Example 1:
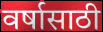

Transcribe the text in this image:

वर्षासाठी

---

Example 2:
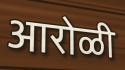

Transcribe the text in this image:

आरोळी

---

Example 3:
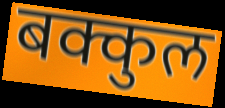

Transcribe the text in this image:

बक्कुल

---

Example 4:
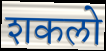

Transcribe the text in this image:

शकलो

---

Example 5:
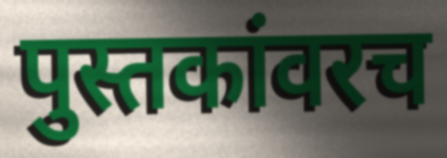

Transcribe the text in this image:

पुस्तकांवरच